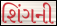
શિંગની